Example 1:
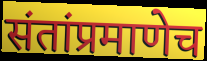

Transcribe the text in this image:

संतांप्रमाणेच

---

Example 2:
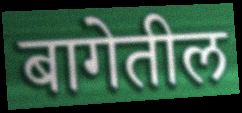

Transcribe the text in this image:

बागेतील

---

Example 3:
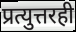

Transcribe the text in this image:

प्रत्युत्तरही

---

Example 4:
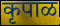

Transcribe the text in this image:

कृपाळ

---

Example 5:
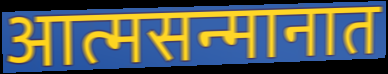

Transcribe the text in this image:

आत्मसन्मानात